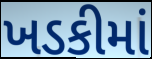
ખડકીમાં